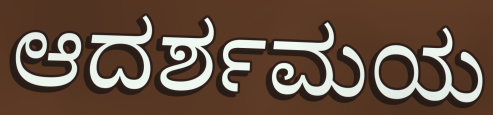
ಆದರ್ಶಮಯ